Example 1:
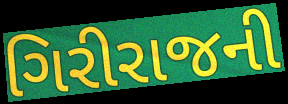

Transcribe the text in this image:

ગિરીરાજની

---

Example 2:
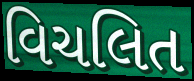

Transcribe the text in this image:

વિચલિત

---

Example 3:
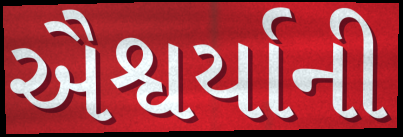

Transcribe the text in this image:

ઐશ્વર્યાની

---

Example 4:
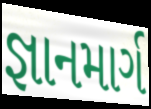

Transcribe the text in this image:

જ્ઞાનમાર્ગ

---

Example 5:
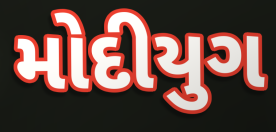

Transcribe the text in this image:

મોદીયુગ